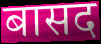
बासद